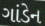
ગાંડેન